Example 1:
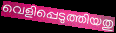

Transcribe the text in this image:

വെളിപ്പെടുത്തിയതു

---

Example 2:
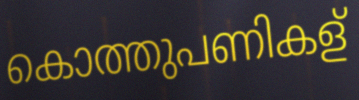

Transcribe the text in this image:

കൊത്തുപണികള്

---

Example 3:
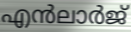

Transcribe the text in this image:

എൻലാർജ്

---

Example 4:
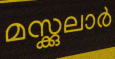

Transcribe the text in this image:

മസ്ക്കുലാർ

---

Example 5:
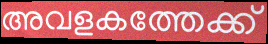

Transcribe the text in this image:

അവളകത്തേക്ക്